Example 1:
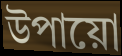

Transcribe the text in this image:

উপায়ো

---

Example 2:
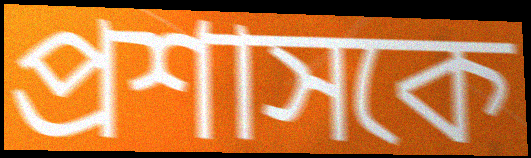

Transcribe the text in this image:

প্ৰশাসকে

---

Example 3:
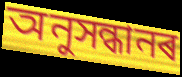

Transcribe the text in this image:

অনুসন্ধানৰ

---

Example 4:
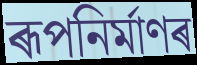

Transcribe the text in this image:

ৰূপনিৰ্মাণৰ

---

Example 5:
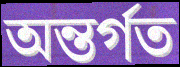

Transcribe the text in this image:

অন্তৰ্গত